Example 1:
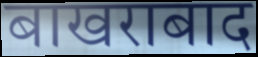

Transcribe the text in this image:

बाखराबाद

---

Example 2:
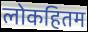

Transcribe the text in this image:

लोकहितम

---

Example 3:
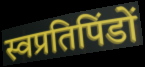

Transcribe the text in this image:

स्वप्रतिपिंडों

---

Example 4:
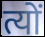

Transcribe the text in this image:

त्यों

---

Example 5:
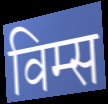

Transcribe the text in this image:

विम्स